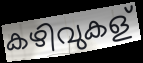
കഴിവുകള്